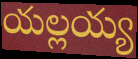
యల్లయ్య